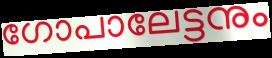
ഗോപാലേട്ടനും